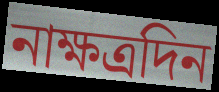
নাক্ষত্রদিন